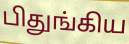
பிதுங்கிய